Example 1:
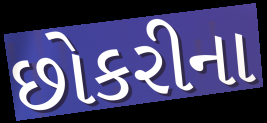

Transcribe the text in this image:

છોકરીના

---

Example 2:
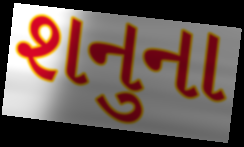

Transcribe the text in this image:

શનુના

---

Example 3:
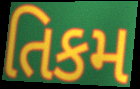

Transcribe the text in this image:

તિકમ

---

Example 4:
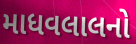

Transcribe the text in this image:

માધવલાલનો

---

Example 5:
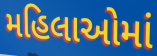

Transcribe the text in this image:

મહિલાઓમાં